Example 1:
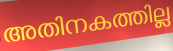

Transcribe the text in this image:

അതിനകത്തില്ല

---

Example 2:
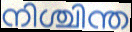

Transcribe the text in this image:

നിശ്ചിന്ത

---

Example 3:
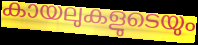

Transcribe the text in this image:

കായലുകളുടെയും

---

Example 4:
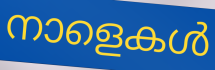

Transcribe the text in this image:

നാളെകൾ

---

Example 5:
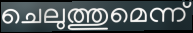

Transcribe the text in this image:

ചെലുത്തുമെന്ന്